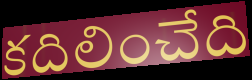
కదిలించేది